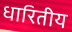
धारितीय